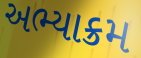
અભ્યાક્રમ